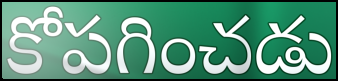
కోపగించడు